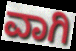
ವಾಗಿ